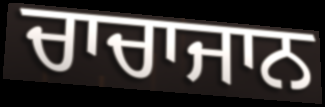
ਚਾਚਾਜਾਨ